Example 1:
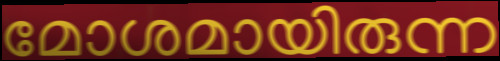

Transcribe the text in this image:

മോശമായിരുന്ന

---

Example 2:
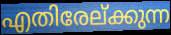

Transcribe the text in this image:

എതിരേല്ക്കുന്ന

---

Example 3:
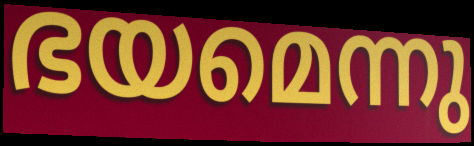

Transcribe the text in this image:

ഭയമെന്നു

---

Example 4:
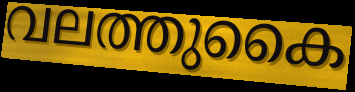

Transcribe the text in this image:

വലത്തുകൈ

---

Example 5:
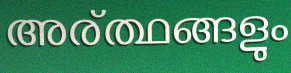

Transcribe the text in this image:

അര്ത്ഥങ്ങളും